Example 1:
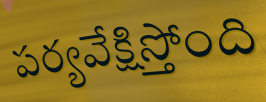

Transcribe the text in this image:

పర్యవేక్షిస్తోంది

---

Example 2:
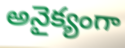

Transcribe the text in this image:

అనైక్యంగా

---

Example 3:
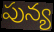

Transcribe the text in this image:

పున్య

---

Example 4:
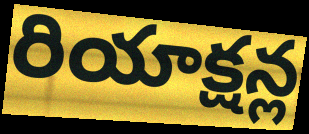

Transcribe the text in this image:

రియాక్షన్ల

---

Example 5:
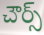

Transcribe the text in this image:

చౌర్స్